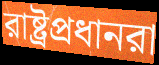
রাষ্ট্রপ্রধানরা